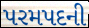
પરમપદની